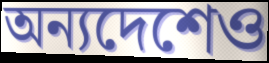
অন্যদেশেও